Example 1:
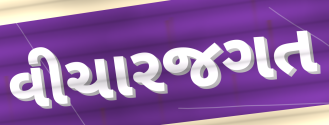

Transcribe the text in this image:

વીચારજગત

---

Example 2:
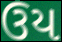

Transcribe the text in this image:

ઉય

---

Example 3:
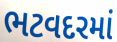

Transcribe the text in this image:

ભટવદરમાં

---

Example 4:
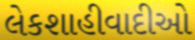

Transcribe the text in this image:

લેકશાહીવાદીઓ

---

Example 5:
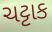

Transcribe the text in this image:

ચટ્ટાક